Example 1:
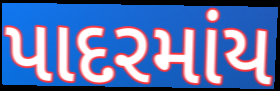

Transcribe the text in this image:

પાદરમાંય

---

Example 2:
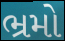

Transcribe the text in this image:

ભ્રમો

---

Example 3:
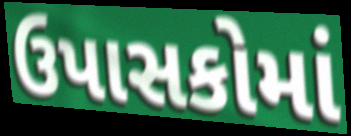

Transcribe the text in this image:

ઉપાસકોમાં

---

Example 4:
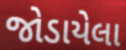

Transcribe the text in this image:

જોડાયેલા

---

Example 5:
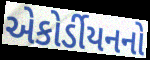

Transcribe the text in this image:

એકોર્ડીયનનો